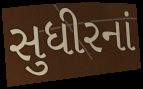
સુધીરનાં